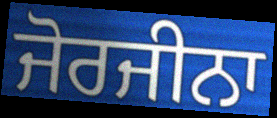
ਜੋਰਜੀਨਾ